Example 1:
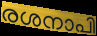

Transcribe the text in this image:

രശനാപി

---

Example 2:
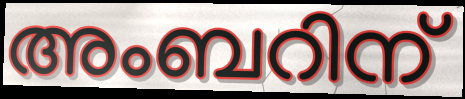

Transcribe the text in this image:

അംബറിന്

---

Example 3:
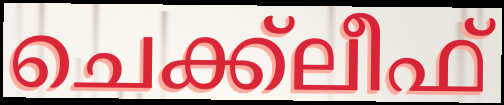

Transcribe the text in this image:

ചെക്ക്ലീഫ്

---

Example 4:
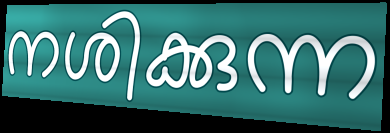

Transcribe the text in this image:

നശിക്കുന്ന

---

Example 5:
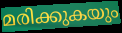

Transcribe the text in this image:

മരിക്കുകയും